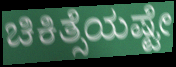
ಚಿಕಿತ್ಸೆಯಷ್ಟೇ